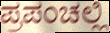
ಪ್ರಪಂಚಲ್ಲಿ